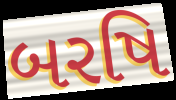
બરષિ